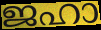
ജഹാ